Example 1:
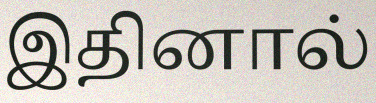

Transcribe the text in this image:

இதினால்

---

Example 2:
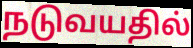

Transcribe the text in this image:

நடுவயதில்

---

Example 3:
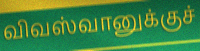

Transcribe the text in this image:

விவஸ்வானுக்குச்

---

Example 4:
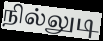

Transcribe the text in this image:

நில்லுடி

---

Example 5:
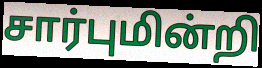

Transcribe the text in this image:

சார்புமின்றி